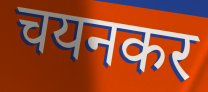
चयनकर